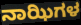
ನಾಝಿಗಳ